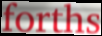
forths